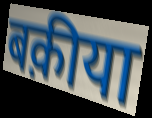
बक़ीया